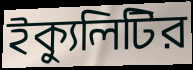
ইক্যুলিটির